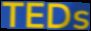
TEDs